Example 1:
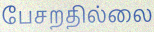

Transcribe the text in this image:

பேசறதில்லை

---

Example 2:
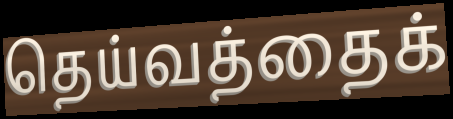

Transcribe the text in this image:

தெய்வத்தைக்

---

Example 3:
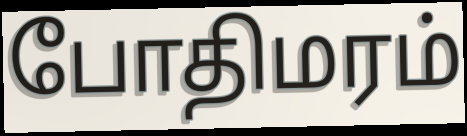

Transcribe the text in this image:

போதிமரம்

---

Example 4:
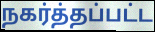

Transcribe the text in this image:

நகர்த்தப்பட்ட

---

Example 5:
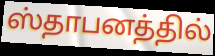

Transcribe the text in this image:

ஸ்தாபனத்தில்